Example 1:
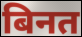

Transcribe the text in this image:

बिनत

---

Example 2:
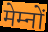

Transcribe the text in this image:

मेम्नों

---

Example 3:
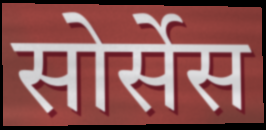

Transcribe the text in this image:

सोर्सेस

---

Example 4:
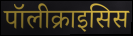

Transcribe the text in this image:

पॉलीक्राइसिस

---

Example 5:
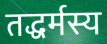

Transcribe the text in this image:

तद्धर्मस्य